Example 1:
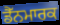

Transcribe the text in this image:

ਡੈੱਨਮਾਰਕ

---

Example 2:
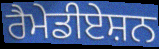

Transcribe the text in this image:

ਰੈਮੇਡੀਏਸ਼ਨ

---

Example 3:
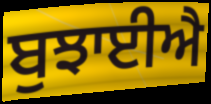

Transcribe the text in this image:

ਬੁਝਾਈਐ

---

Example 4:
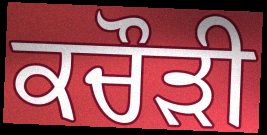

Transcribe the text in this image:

ਕਚੌੜੀ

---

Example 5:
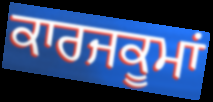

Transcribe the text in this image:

ਕਾਰਜਕੂਮਾਂ